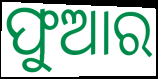
ଫୁଆର